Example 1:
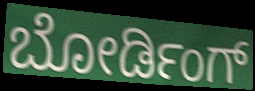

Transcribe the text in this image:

ಬೋರ್ಡಿಂಗ್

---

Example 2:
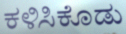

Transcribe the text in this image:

ಕಳಿಸಿಕೊಡು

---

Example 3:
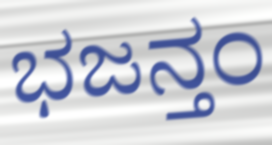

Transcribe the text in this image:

ಭಜನ್ತಂ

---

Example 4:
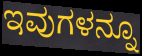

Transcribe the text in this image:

ಇವುಗಳನ್ನೂ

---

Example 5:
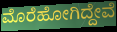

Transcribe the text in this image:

ಮೊರೆಹೋಗಿದ್ದೇವೆ